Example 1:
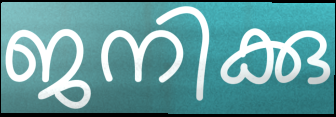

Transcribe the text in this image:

ജനിക്കു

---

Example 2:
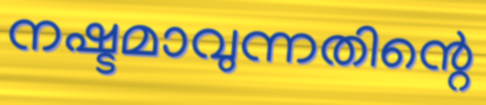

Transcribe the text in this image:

നഷ്ടമാവുന്നതിന്റെ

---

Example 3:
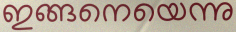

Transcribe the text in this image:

ഇങ്ങനെയെന്നു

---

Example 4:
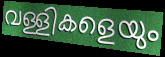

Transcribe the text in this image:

വള്ളികളെയും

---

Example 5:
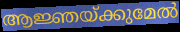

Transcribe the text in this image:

ആജ്ഞയ്ക്കുമേൽ